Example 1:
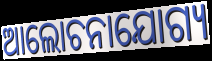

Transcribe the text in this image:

ଆଲୋଚନାଯୋଗ୍ୟ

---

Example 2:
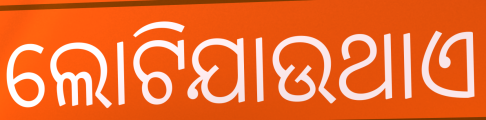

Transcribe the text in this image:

ଲୋଟିଯାଉଥାଏ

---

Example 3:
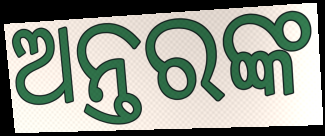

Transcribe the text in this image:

ଅନ୍ତରଙ୍କ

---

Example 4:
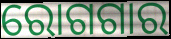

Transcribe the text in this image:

ରୋଗଗାର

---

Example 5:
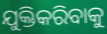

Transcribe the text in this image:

ଯୁକ୍ତିକରିବାକୁ